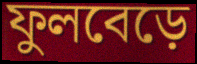
ফুলবেড়ে